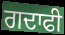
ਗਦਾਫੀ